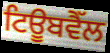
ਟਿਊਬਵੈੱਲ